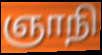
ஞாநி